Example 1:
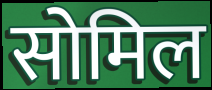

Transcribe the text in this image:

सोमिल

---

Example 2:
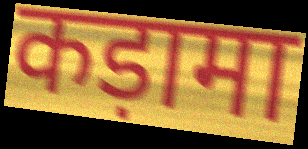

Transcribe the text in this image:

कड़ामा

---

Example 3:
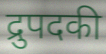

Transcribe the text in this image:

द्रुपदकी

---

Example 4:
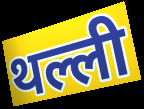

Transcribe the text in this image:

थल्ली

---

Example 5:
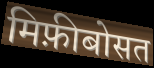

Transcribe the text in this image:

मिफ़ीबोसत